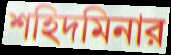
শহিদমিনার